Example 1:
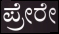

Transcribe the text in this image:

ಪ್ರೇರೇ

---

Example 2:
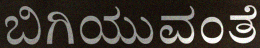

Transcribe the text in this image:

ಬಿಗಿಯುವಂತೆ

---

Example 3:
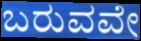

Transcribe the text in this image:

ಬರುವವೇ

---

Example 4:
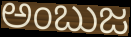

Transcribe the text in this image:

ಅಂಬುಜ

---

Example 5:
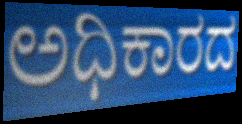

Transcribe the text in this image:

ಅಧಿಕಾರದ